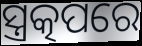
ସ୍ତ୍ରତ୍କପରେ